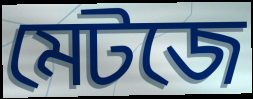
মেটজে